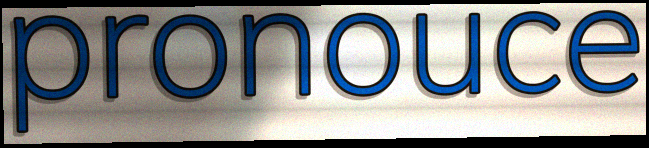
pronouce